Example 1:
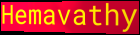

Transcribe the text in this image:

Hemavathy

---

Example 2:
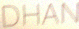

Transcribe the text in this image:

DHAN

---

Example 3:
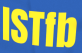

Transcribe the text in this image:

ISTfb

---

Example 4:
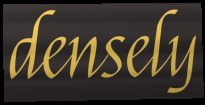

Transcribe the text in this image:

densely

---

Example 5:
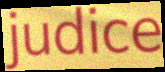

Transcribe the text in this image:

judice